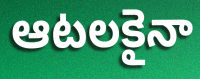
ఆటలకైనా